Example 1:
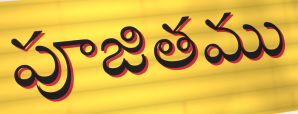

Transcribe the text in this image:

పూజితము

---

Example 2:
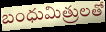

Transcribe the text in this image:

బంధుమిత్రులతో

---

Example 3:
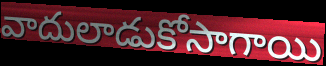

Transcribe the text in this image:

వాదులాడుకోసాగాయి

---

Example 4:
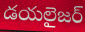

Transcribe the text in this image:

డయలైజర్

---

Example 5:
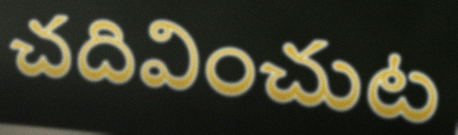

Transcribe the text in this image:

చదివించుట